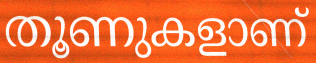
തൂണുകളാണ്